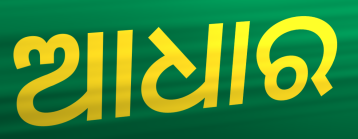
ଆଧାର